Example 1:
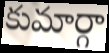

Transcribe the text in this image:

కుమార్గా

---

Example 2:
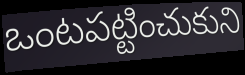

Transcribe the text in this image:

ఒంటపట్టించుకుని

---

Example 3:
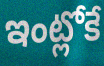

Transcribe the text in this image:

ఇంట్లోకే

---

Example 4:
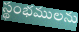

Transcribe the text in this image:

స్థంభములను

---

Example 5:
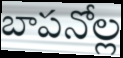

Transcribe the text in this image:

బాపనోల్ల